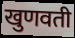
खुणवती